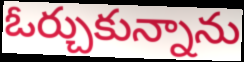
ఓర్చుకున్నాను